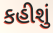
કહીશું